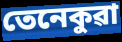
তেনেকুৱা